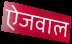
ऐजवाल